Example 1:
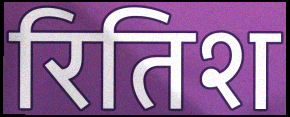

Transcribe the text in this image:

रितिश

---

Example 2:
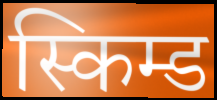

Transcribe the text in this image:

स्किम्ड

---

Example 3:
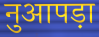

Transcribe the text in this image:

नुआपड़ा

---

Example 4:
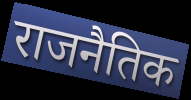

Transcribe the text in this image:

राजनैतिक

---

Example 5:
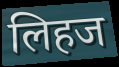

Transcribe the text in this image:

लिहज